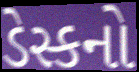
ડેસ્કનો